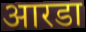
आरडा